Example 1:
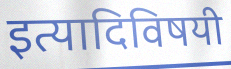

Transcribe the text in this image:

इत्यादिविषयी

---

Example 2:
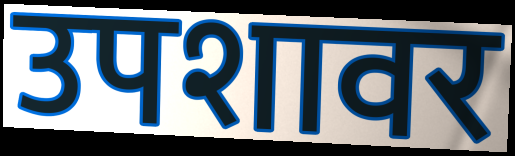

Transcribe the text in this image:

उपशावर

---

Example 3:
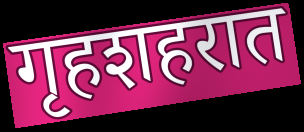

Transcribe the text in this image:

गृहशहरात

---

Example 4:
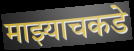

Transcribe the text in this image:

माझ्याचकडे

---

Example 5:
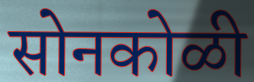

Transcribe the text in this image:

सोनकोळी